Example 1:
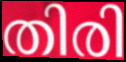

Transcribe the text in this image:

തിരി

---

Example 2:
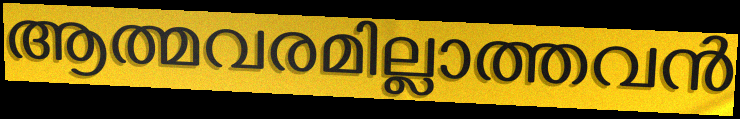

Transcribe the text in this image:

ആത്മവരമില്ലാത്തവൻ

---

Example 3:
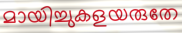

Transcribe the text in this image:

മായിച്ചുകളയരുതേ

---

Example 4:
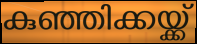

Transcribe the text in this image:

കുഞ്ഞിക്കയ്ക്ക്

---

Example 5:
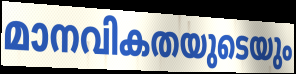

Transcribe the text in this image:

മാനവികതയുടെയും